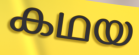
കഥയ